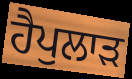
ਹੈਪੁਲਾੜ